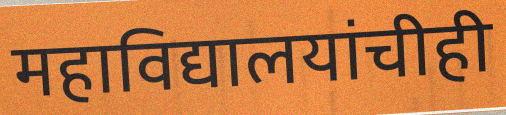
महाविद्यालयांचीही